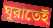
ঘুরাতেই